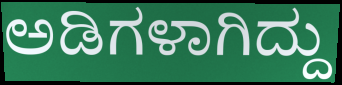
ಅಡಿಗಳಾಗಿದ್ದು